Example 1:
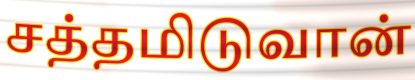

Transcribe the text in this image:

சத்தமிடுவான்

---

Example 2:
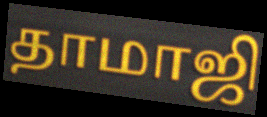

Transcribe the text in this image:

தாமாஜி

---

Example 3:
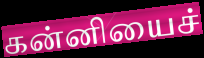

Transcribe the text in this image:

கன்னியைச்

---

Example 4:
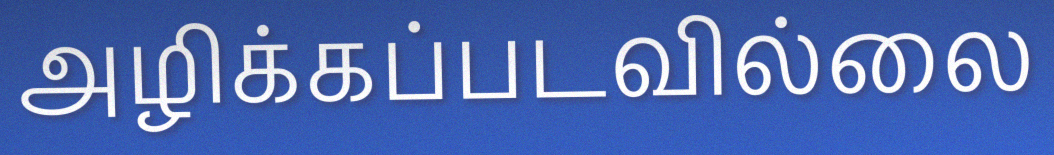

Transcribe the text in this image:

அழிக்கப்படவில்லை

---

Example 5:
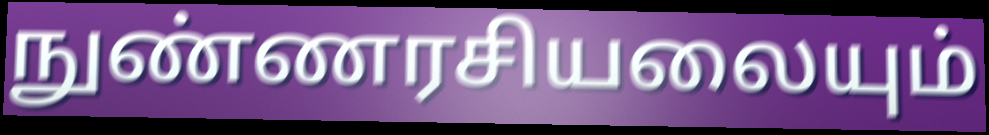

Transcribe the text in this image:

நுண்ணரசியலையும்